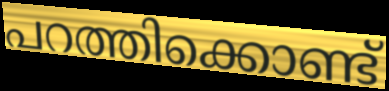
പറത്തിക്കൊണ്ട്